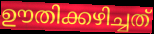
ഊതിക്കഴിച്ചത്